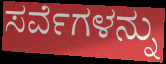
ಸರ್ವೆಗಳನ್ನು